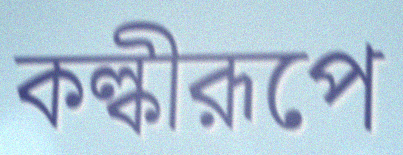
কল্কীরূপে